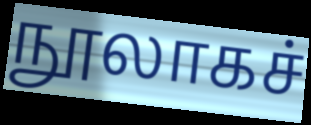
நூலாகச்